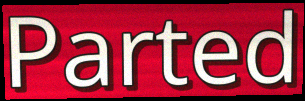
Parted